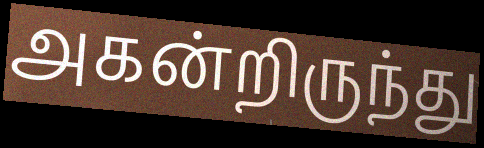
அகன்றிருந்து